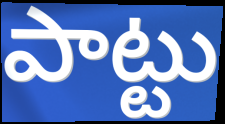
పాట్టు